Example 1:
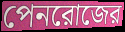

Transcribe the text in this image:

পেনরোজের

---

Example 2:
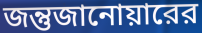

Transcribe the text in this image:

জন্তুজানোয়ারের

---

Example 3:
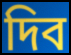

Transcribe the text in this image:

দিব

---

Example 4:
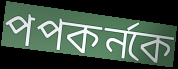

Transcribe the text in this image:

পপকর্নকে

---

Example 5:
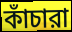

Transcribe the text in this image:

কাঁচারা